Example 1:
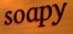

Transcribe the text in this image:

soapy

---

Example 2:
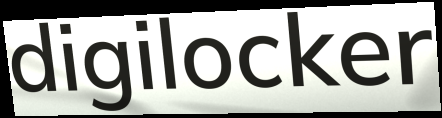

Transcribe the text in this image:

digilocker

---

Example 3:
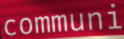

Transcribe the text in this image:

communi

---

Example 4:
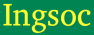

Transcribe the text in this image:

Ingsoc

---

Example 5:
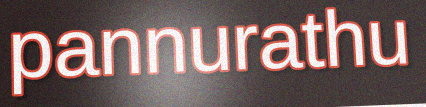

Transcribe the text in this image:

pannurathu